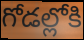
గోడల్లోకి